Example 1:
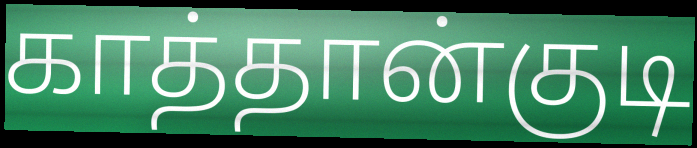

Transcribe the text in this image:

காத்தான்குடி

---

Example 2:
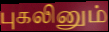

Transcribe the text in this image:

புகலினும்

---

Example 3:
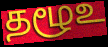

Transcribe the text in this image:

தழூஉ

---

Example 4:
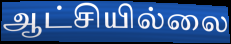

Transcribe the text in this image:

ஆட்சியில்லை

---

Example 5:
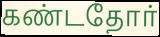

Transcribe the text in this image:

கண்டதோர்